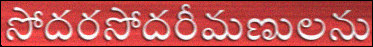
సోదరసోదరీమణులను